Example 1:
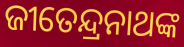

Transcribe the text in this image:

ଜୀତେନ୍ଦ୍ରନାଥଙ୍କ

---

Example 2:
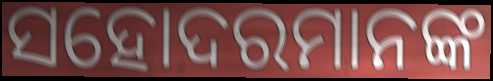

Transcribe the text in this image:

ସହୋଦରମାନଙ୍କ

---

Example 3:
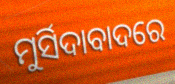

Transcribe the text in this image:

ମୁର୍ସିଦାବାଦରେ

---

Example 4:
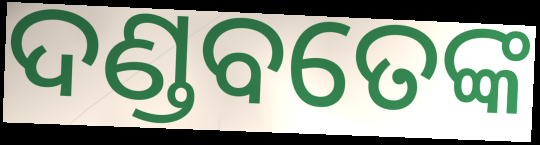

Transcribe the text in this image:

ଦଣ୍ଡବତେଙ୍କ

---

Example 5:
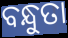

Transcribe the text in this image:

ବନ୍ଧୁତା